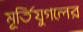
মূর্তিযুগলের